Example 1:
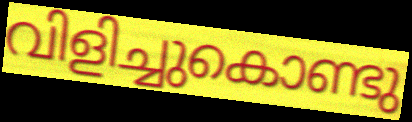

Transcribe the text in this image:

വിളിച്ചുകൊണ്ടു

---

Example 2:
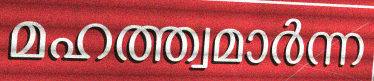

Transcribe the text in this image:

മഹത്ത്വമാർന്ന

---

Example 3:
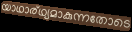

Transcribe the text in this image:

യാഥാര്ഥ്യമാകുന്നതോടെ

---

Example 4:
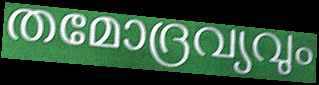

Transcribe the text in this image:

തമോദ്രവ്യവും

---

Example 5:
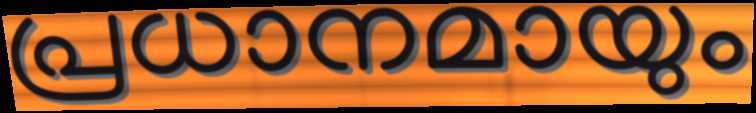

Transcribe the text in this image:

പ്രധാനമായും